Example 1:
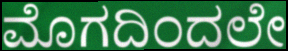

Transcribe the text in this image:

ಮೊಗದಿಂದಲೇ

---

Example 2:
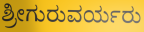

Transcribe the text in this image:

ಶ್ರೀಗುರುವರ್ಯರು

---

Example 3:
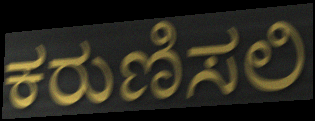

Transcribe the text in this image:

ಕರುಣಿಸಲಿ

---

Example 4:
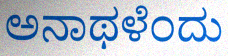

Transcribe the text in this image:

ಅನಾಥಳೆಂದು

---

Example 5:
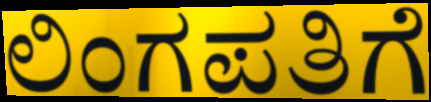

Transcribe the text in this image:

ಲಿಂಗಪತಿಗೆ